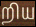
றிய